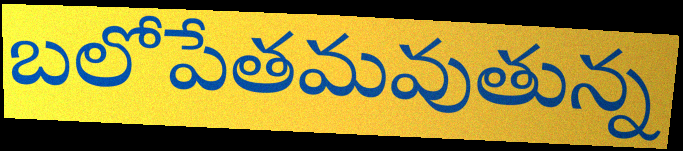
బలోపేతమవుతున్న